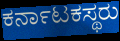
ಕರ್ನಾಟಕಸ್ಥರು